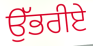
ਉੱਭਰੀਏ